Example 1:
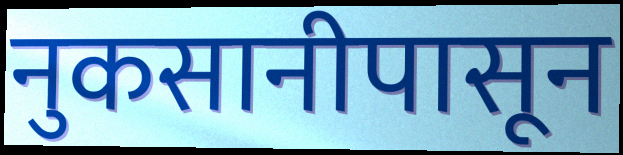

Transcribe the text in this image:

नुकसानीपासून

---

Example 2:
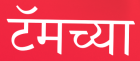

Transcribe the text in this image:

टॅमच्या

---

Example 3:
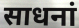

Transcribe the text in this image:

साधनां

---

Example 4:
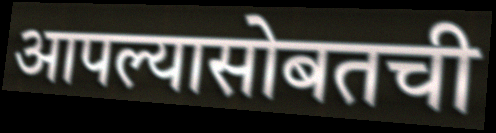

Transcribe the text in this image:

आपल्यासोबतची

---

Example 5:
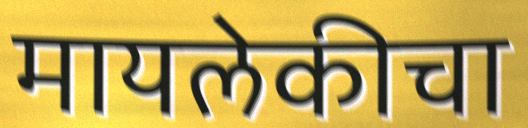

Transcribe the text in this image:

मायलेकीचा